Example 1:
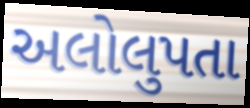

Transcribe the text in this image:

અલોલુપતા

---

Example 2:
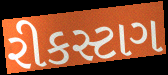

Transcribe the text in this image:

રીકસ્ટાગ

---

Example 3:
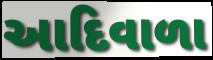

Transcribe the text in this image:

આદિવાળા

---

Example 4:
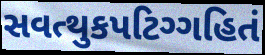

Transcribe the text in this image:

સવત્થુકપટિગ્ગહિતં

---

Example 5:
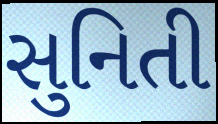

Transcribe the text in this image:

સુનિતી